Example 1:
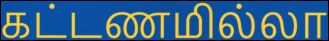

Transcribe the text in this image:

கட்டணமில்லா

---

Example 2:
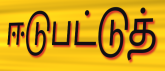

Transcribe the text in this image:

ஈடுபட்டுத்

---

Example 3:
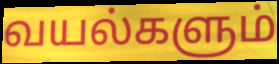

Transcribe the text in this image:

வயல்களும்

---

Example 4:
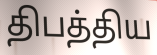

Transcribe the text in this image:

திபத்திய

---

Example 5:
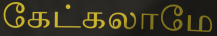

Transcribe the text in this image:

கேட்கலாமே